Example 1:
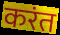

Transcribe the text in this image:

करंत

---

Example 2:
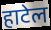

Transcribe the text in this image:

हाटेल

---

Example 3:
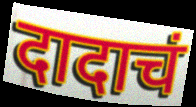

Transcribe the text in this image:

दादाचं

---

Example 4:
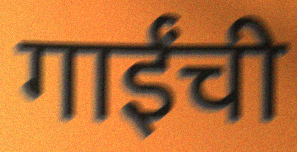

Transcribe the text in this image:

गाईंची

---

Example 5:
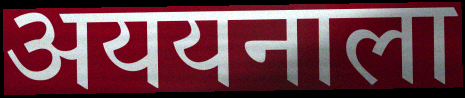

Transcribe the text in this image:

अययनाला